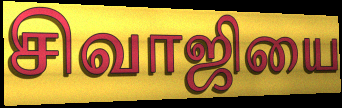
சிவாஜியை